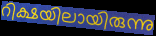
റിക്ഷയിലായിരുന്നു